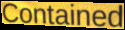
Contained